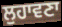
ਲੁਹਾਵਣਾ